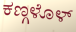
ಕಣ್ಗಳೊಳ್